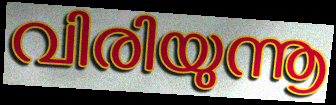
വിരിയുന്നൂ